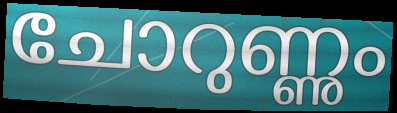
ചോറുണ്ണും